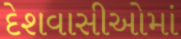
દેશવાસીઓમાં